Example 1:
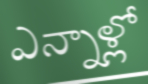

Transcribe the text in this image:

ఎన్నాళ్లో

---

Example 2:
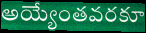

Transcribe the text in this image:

అయ్యేంతవరకూ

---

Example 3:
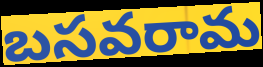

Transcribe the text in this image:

బసవరామ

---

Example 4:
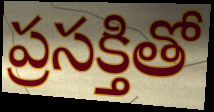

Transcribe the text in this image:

ప్రసక్తితో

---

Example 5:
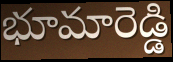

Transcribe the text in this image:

భూమారెడ్డి